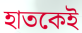
হাতকেই